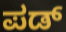
ಪಡ್